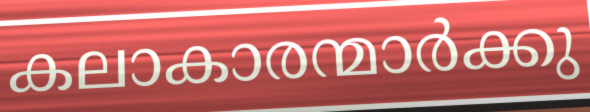
കലാകാരന്മാർക്കു